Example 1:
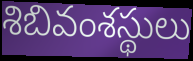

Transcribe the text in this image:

శిబివంశస్థులు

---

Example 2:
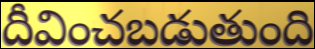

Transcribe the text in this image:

దీవించబడుతుంది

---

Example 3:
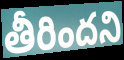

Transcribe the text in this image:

తీరిందని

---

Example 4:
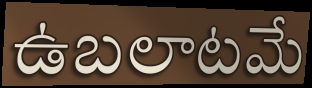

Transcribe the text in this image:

ఉబలాటమే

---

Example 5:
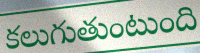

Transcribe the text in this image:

కలుగుతుంటుంది